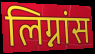
लिग्नांस